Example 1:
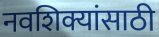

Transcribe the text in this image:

नवशिक्यांसाठी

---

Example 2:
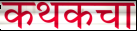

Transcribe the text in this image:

कथकचा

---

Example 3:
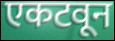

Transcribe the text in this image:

एकटवून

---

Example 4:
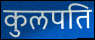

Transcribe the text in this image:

कुलपति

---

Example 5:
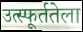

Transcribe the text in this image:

उत्स्फूर्ततेला